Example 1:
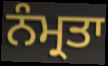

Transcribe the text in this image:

ਨੰਮ੍ਰਤਾ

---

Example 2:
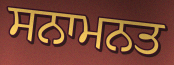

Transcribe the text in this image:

ਸਨਾਮਨਤ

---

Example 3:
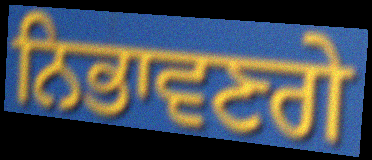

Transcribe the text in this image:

ਨਿਭਾਵਣਗੇ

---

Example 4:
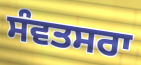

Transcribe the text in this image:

ਸੰਵਤਸਰਾ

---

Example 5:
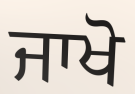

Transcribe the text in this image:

ਜਾਖੋ